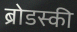
ब्रोडस्की